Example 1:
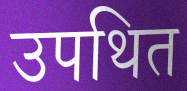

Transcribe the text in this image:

उपथित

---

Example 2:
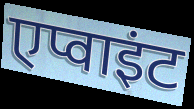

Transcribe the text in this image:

एप्वाइंट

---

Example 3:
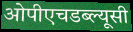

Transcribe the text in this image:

ओपीएचडब्ल्यूसी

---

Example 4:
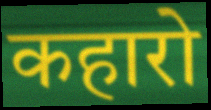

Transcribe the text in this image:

कहारो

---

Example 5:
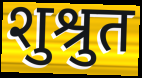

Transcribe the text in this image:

शुश्रुत